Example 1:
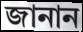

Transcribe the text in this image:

জানান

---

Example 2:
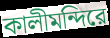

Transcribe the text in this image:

কালীমন্দিরে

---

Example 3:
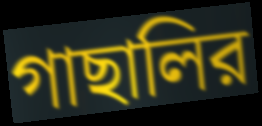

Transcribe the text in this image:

গাছালির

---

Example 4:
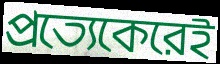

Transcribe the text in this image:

প্রত্যেকেরেই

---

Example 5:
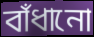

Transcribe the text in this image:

বাঁধানো